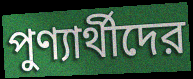
পুণ্যার্থীদের